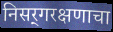
निसर्गरक्षणाचा